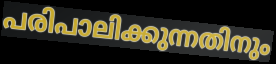
പരിപാലിക്കുന്നതിനും